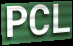
PCL